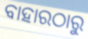
ବାହାରଠାରୁ